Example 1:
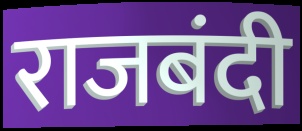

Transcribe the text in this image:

राजबंदी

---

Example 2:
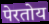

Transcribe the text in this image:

पेरतोय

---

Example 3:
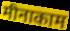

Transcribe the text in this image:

मीनाकाम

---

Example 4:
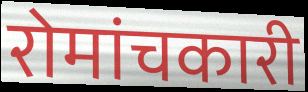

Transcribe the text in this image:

रोमांचकारी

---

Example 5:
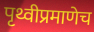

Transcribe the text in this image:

पृथ्वीप्रमाणेच